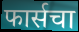
फार्सचा